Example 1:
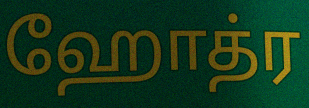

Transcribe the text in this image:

ஹோத்ர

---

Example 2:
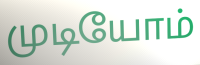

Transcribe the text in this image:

முடியோம்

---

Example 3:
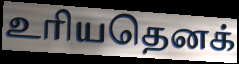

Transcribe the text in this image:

உரியதெனக்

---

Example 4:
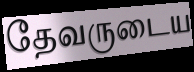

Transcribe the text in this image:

தேவருடைய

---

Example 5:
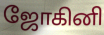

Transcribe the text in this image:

ஜோகினி